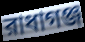
রাধাগঞ্জ